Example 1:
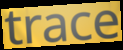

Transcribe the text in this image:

trace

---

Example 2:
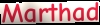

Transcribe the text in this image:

Marthad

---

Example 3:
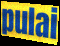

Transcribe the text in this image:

pulai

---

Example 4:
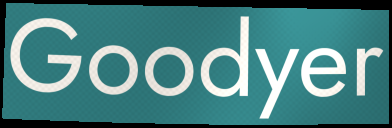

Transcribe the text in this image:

Goodyer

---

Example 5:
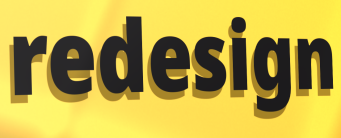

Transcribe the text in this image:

redesign